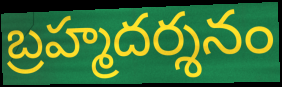
బ్రహ్మదర్శనం